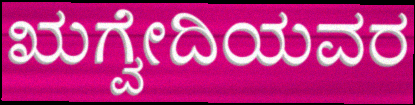
ಋಗ್ವೇದಿಯವರ